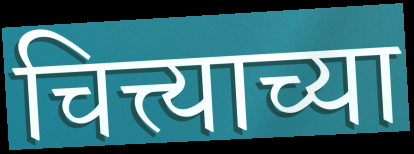
चित्त्याच्या